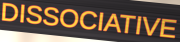
DISSOCIATIVE